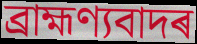
ব্ৰাহ্মণ্যবাদৰ